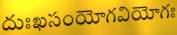
దుఃఖసంయోగవియోగః